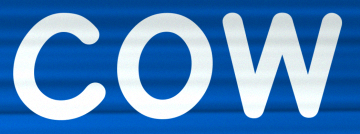
cow